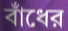
বাঁধের